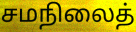
சமநிலைத்